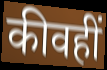
कीवहीं